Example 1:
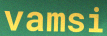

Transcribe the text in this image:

vamsi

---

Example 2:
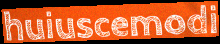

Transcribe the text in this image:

huiuscemodi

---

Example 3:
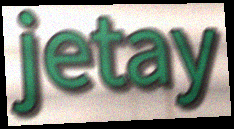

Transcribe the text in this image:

jetay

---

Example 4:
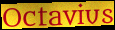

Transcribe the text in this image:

Octavius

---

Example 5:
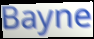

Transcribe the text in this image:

Bayne